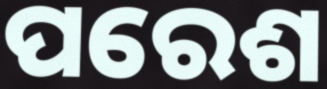
ପରେଶ